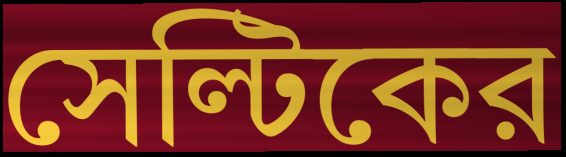
সেল্টিকের